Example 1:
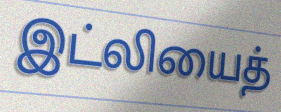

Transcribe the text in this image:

இட்லியைத்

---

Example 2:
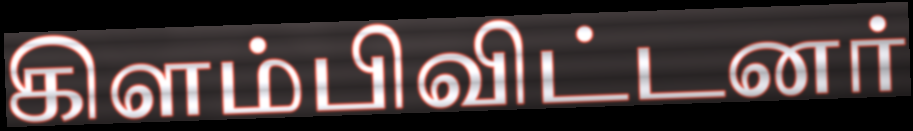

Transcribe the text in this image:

கிளம்பிவிட்டனர்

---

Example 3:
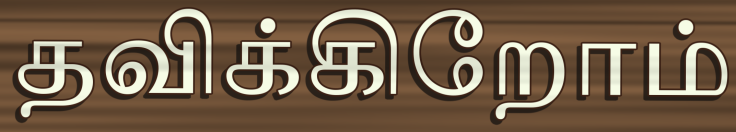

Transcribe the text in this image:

தவிக்கிறோம்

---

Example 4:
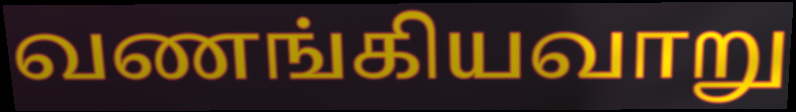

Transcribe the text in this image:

வணங்கியவாறு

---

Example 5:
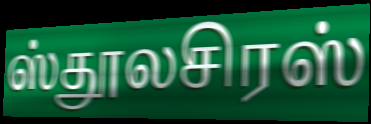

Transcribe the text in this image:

ஸ்தூலசிரஸ்